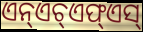
ଏନ୍ଏଚ୍ଏଫ୍ଏସ୍